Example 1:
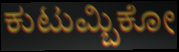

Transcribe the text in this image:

ಕುಟುಮ್ಬಿಕೋ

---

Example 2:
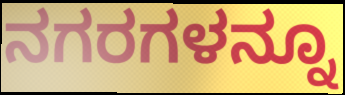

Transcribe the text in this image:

ನಗರಗಳನ್ನೂ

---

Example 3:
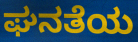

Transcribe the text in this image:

ಘನತೆಯ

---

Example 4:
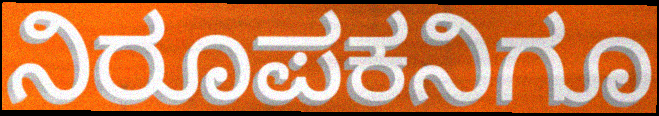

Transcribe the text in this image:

ನಿರೂಪಕನಿಗೂ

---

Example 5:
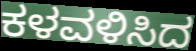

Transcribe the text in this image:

ಕಳವಳಿಸಿದ